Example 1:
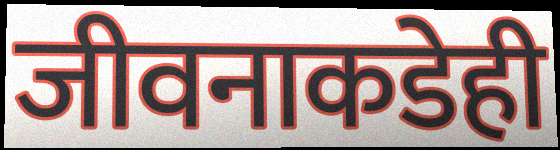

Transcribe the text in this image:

जीवनाकडेही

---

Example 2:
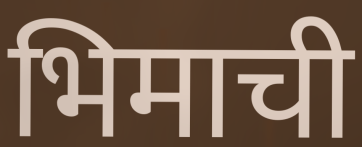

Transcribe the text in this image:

भिमाची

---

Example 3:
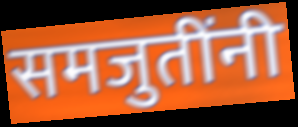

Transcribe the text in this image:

समजुतींनी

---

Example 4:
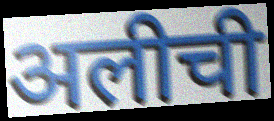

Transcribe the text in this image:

अलीची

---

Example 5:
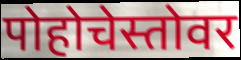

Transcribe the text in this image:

पोहोचेस्तोवर